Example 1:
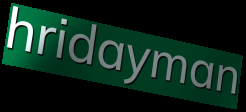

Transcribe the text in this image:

hridayman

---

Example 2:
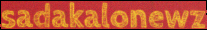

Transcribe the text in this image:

sadakalonewz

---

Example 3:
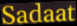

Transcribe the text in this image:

Sadaat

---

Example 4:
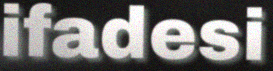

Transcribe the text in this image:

ifadesi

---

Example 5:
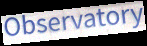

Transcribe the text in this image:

Observatory